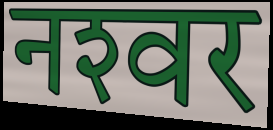
नश्वर